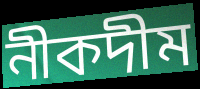
নীকদীম